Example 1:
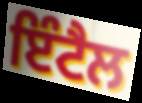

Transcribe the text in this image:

ਇੰਟੈਲ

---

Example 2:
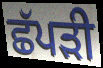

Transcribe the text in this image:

ਛੱਪੜੀ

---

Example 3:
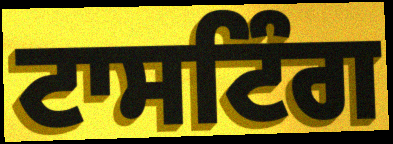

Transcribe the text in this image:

ਟਾਸਟਿੰਗ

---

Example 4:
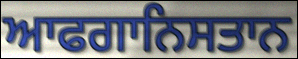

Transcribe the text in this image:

ਆਫਗਾਨਿਸਤਾਨ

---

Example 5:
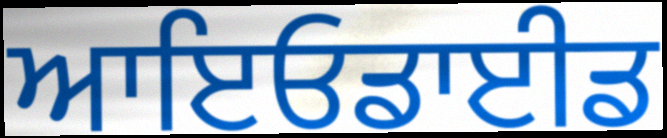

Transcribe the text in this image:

ਆਇਓਡਾਈਡ